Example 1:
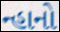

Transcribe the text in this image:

ન્હાનો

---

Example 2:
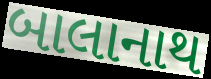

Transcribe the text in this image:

બાલાનાથ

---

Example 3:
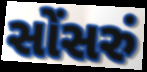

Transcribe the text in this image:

સોંસરું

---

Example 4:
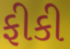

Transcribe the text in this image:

ફીકી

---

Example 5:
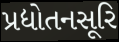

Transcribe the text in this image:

પ્રદ્યોતનસૂરિ